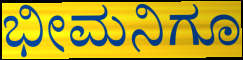
ಭೀಮನಿಗೂ